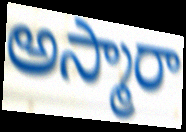
అస్మారా